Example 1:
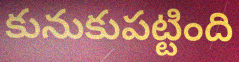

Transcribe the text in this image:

కునుకుపట్టింది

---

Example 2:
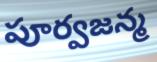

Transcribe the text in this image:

పూర్వజన్మ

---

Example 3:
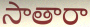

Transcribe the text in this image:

సాతారా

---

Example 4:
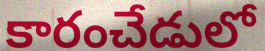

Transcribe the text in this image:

కారంచేడులో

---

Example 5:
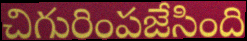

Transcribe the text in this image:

చిగురింపజేసింది